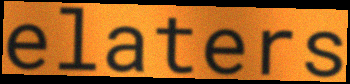
elaters